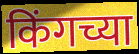
किंगच्या